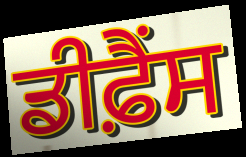
ਡੀਫ਼ੈਂਸ